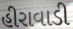
હીરાવાડી